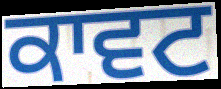
ਕਾਵਟ